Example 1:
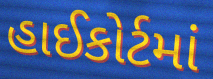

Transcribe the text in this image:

હાઈકોર્ટમાં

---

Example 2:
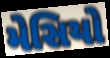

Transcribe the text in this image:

મેસિયો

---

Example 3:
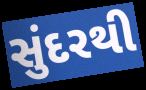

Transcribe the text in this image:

સુંદરથી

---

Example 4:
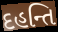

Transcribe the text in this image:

દહન્તિ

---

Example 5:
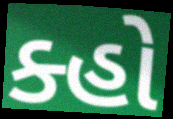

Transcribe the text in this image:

ક્હો